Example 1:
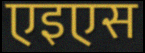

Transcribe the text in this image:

एइएस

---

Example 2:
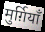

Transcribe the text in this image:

मुर्ग़ियाँ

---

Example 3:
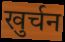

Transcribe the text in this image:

खुर्चन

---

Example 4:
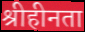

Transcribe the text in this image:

श्रीहीनता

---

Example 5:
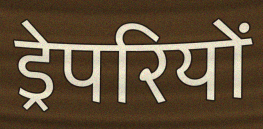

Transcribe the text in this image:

ड्रेपरियों